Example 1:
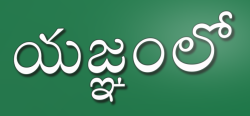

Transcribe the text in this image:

యజ్ఞంలో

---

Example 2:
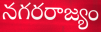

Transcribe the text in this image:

నగరరాజ్యం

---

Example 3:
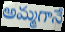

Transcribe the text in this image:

అమ్మగానే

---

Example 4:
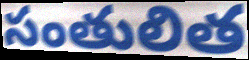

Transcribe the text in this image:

సంతులిత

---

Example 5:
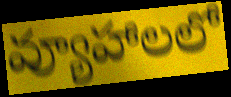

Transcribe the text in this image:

వ్యూహాలలో